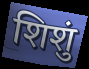
शिशुं